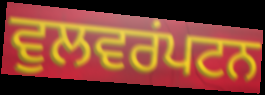
ਵੁਲਵਰਂਪਟਨ